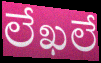
లేఖలే